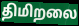
திமிறலை